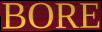
BORE